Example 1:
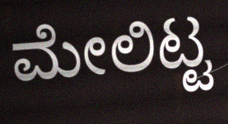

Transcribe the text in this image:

ಮೇಲಿಟ್ಟ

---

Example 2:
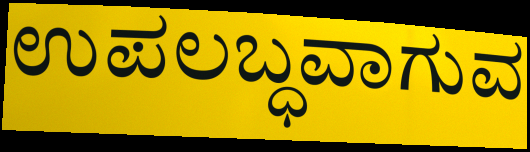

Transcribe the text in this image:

ಉಪಲಬ್ಧವಾಗುವ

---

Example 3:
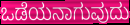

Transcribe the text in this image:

ಒಡೆಯನಾಗುವುದು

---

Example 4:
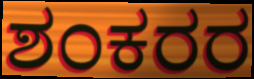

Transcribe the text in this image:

ಶಂಕರರ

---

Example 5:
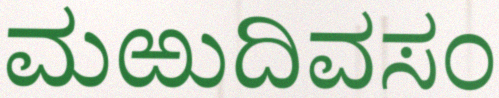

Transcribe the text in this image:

ಮಱುದಿವಸಂ